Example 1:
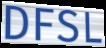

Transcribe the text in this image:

DFSL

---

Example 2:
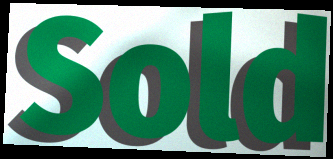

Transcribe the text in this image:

Sold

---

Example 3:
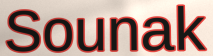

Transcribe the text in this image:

Sounak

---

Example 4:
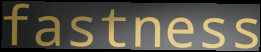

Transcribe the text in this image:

fastness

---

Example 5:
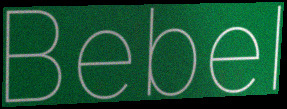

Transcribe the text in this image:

Bebel